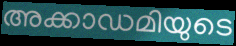
അക്കാഡമിയുടെ